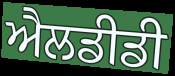
ਐਲਡੀਡੀ